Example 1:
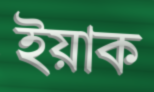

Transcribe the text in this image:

ইয়াক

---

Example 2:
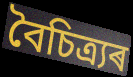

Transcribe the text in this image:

বৈচিত্ৰ্যৰ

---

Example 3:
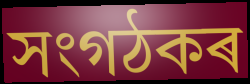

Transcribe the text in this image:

সংগঠকৰ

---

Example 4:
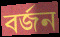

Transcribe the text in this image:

বৰ্জন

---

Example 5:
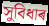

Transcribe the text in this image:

সুবিধাৰ